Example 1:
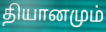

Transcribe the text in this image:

தியானமும்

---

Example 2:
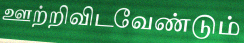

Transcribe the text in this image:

ஊற்றிவிடவேண்டும்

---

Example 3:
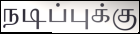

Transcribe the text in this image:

நடிப்புக்கு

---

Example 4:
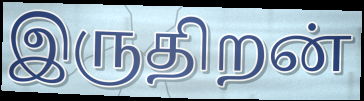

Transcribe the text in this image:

இருதிறன்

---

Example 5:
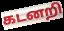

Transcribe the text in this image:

கடனறி